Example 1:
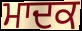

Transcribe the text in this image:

ਮਾਦਕ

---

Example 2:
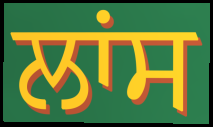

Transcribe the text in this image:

ਲਾਂਸ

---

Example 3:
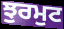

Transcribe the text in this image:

ਝੁਰਮੁਟ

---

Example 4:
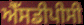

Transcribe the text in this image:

ਐੱਸਡੀਪੀਸੀ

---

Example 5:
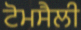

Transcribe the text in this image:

ਟੋਮਸੈਲੀ